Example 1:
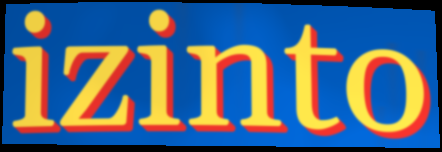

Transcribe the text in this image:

izinto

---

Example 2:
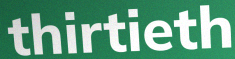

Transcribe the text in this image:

thirtieth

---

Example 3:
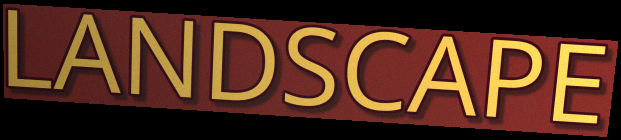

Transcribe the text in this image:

LANDSCAPE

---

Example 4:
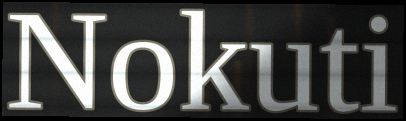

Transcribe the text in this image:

Nokuti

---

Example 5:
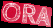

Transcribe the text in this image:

ORA